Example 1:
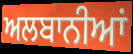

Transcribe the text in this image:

ਅਲਬਾਨੀਆਂ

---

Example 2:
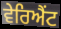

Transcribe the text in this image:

ਵੇਰਿਐਂਟ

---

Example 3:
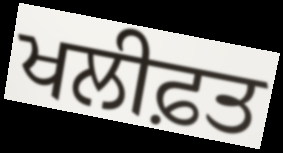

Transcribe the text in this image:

ਖਲੀਫ਼ਤ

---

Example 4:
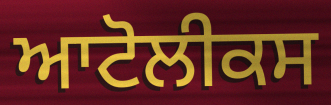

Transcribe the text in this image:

ਆਟੋਲੀਕਸ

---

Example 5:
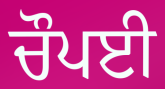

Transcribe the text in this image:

ਚੌਪਈ